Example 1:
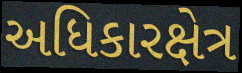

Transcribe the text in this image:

અધિકારક્ષેત્ર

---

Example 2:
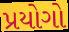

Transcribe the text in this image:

પ્રયોગો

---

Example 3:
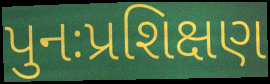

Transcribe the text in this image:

પુનઃપ્રશિક્ષણ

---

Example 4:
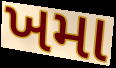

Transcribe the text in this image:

ખમા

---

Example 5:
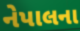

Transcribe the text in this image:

નેપાલના